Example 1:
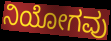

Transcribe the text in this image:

ನಿಯೋಗವು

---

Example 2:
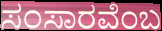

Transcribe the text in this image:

ಸಂಸಾರವೆಂಬ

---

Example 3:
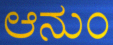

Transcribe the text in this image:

ಆನುಂ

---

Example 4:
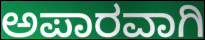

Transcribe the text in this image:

ಅಪಾರವಾಗಿ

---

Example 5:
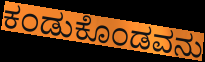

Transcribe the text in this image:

ಕಂಡುಕೊಂಡವನು